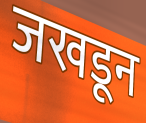
जखडून